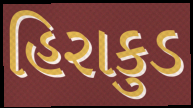
હિરાકુડ